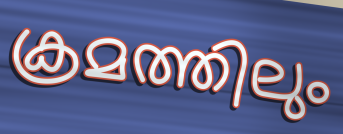
ക്രമത്തിലും